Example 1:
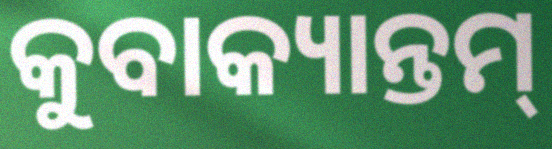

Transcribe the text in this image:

କୁବାକ୍ୟାନ୍ତମ୍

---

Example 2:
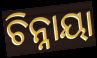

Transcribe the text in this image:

ଚିନ୍ନାୟା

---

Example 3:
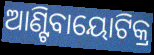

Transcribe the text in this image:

ଆଣ୍ଟିବାୟୋଟିକ୍ର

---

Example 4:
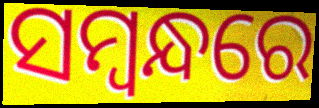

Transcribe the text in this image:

ସମ୍ୱନ୍ଧରେ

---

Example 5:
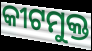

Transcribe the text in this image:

କୀଟମୁକ୍ତ